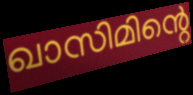
ഖാസിമിന്റെ